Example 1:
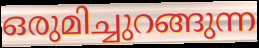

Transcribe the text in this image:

ഒരുമിച്ചുറങ്ങുന്ന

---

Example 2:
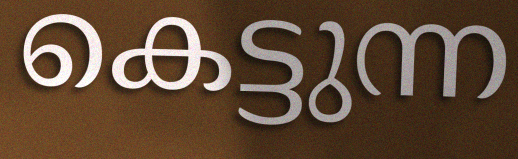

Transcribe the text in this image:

കെട്ടുന്ന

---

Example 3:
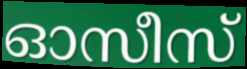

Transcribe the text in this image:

ഓസീസ്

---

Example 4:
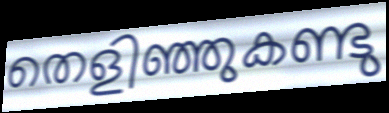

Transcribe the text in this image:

തെളിഞ്ഞുകണ്ടു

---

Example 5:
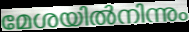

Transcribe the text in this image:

മേശയിൽനിന്നും